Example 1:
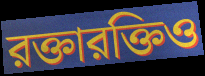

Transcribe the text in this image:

রক্তারক্তিও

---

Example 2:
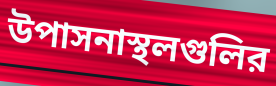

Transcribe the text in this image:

উপাসনাস্থলগুলির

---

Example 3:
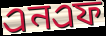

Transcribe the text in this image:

এনএফ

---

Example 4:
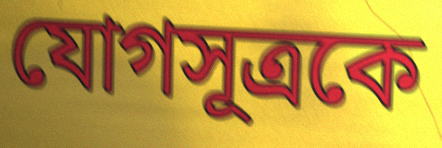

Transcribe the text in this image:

যোগসূত্রকে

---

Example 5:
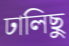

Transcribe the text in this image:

ঢালিছু